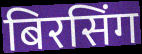
बिरसिंग